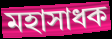
মহাসাধক